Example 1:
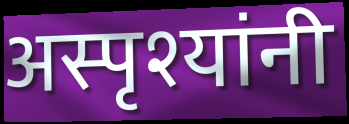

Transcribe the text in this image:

अस्पृश्यांनी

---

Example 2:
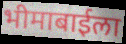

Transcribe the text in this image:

भीमाबाईला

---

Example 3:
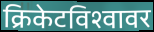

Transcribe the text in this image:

क्रिकेटविश्वावर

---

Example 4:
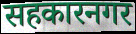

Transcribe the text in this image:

सहकारनगर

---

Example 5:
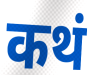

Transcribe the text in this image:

कथं